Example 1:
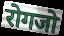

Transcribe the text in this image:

रोगजो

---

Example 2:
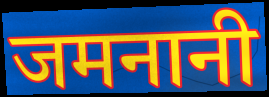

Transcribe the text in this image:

जमनानी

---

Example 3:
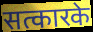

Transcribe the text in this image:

सत्कारके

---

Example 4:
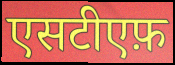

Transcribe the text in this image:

एसटीएफ़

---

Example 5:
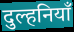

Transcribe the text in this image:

दुल्हनियाँ